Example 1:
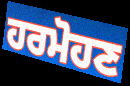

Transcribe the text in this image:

ਹਰਮੋਹਣ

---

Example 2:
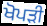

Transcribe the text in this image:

ਖੋਪੜੀ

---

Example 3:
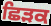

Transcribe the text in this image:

ਛਿੜਕ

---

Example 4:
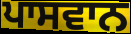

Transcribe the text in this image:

ਪਾਸਵਾਨ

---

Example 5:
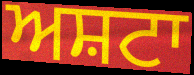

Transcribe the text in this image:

ਅਸ਼ਟਾ